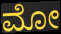
ಮೋ